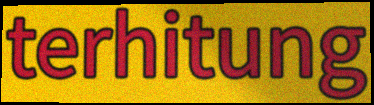
terhitung